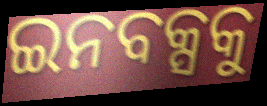
ଇନବକ୍ସକୁ